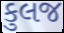
કુલજ